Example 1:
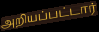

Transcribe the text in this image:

அறியப்பட்டார்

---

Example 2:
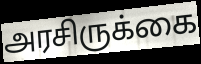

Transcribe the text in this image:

அரசிருக்கை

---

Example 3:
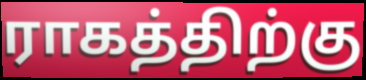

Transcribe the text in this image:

ராகத்திற்கு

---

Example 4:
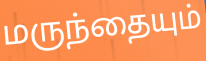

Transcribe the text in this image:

மருந்தையும்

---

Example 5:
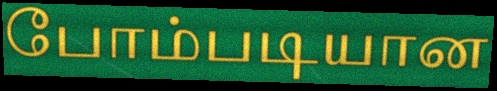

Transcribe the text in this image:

போம்படியான